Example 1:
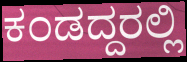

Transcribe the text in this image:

ಕಂಡದ್ದರಲ್ಲಿ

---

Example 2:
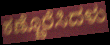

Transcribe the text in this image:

ಕಣ್ಣೊರೆಸಿದಳು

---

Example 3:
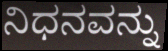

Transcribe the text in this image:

ನಿಧನವನ್ನು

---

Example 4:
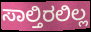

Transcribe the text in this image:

ಸಾಲ್ತಿರಲಿಲ್ಲ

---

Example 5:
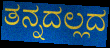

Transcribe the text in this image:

ತನ್ನದಲ್ಲದ